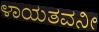
ಳಾಯತವನೀ